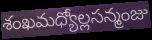
శంఖమధ్యోల్లసన్మంజు